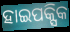
ହାଇପକ୍ସିକ